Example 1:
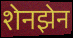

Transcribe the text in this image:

शेनझेन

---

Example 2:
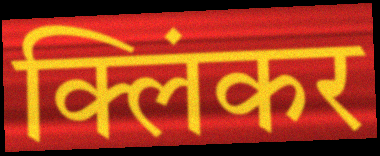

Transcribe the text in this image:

क्लिंकर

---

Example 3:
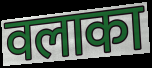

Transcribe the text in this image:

वलाका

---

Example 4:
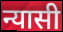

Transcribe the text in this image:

न्यासी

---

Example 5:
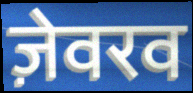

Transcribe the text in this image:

ज़ेवरव